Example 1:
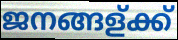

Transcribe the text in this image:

ജനങ്ങള്ക്ക്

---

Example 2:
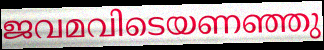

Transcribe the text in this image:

ജവമവിടെയണഞ്ഞു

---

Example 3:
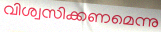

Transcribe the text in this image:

വിശ്വസിക്കണമെന്നു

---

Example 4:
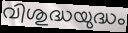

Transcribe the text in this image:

വിശുദ്ധയുദ്ധം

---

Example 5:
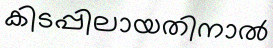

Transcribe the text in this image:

കിടപ്പിലായതിനാൽ